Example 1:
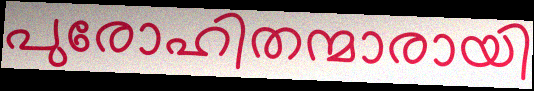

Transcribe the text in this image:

പുരോഹിതന്മാരായി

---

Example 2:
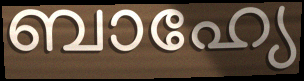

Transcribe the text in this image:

ബാഹ്യേ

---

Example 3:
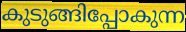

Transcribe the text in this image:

കുടുങ്ങിപ്പോകുന്ന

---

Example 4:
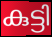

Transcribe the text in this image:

കുട്ടി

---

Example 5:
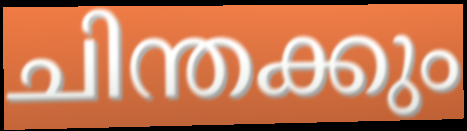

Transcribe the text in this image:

ചിന്തക്കും